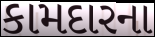
કામદારના